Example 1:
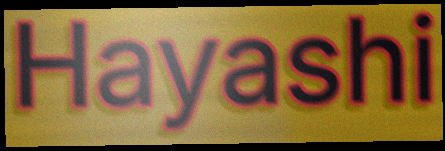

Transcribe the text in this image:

Hayashi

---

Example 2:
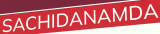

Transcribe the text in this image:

SACHIDANAMDA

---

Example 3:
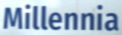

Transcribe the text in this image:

Millennia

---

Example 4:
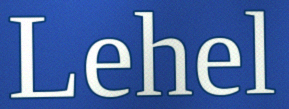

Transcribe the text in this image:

Lehel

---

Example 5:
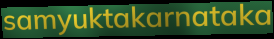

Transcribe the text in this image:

samyuktakarnataka